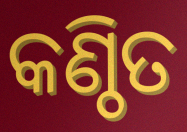
କଣ୍ଠିତ